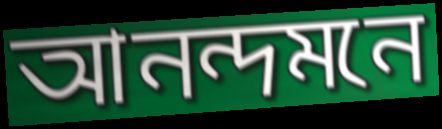
আনন্দমনে